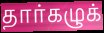
தார்கழுக்